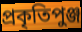
প্রকৃতিপুঞ্জ